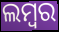
ଲମ୍ୱର